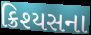
ક્રિશ્યસના